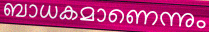
ബാധകമാണെന്നും